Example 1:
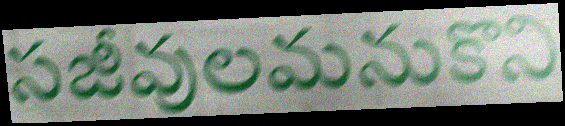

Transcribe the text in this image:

సజీవులమనుకొని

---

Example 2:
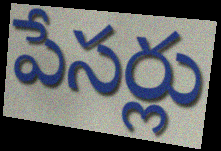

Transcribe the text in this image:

పేసర్లు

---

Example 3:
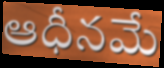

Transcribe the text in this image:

ఆధీనమే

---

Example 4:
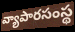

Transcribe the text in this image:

వ్యాపారసంస్థ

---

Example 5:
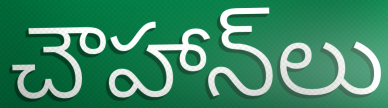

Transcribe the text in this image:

చౌహాన్‌లు